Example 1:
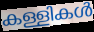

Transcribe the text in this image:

കള്ളികൾ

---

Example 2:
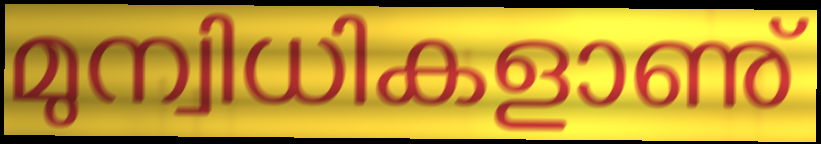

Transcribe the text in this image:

മുന്വിധികളാണു്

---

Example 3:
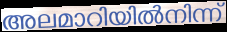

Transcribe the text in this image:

അലമാറിയിൽനിന്ന്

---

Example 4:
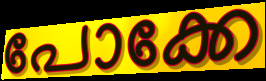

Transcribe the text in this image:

പോക്കേ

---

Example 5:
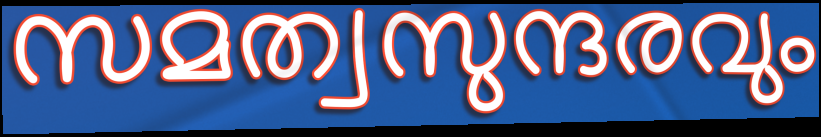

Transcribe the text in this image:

സമത്വസുന്ദരവും